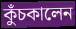
কুঁচকালেন